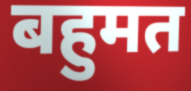
बहुमत